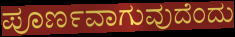
ಪೂರ್ಣವಾಗುವುದೆಂದು